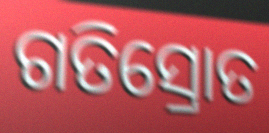
ଗତିସ୍ରୋତ